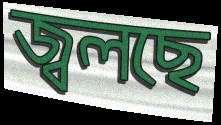
জ্বলছে